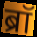
ब्रॉ